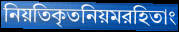
নিয়তিকৃতনিয়মরহিতাং